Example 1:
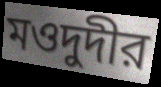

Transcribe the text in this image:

মওদুদীর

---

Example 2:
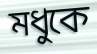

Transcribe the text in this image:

মধুকে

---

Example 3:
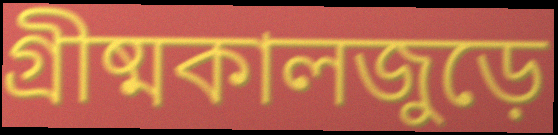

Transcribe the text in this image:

গ্রীষ্মকালজুড়ে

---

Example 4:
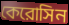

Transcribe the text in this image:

কেরোসিন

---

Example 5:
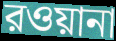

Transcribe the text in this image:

রওয়ানা